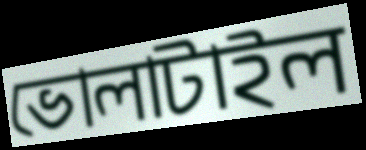
ভোলাটাইল